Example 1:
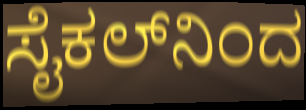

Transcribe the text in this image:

ಸೈಕಲ್‌ನಿಂದ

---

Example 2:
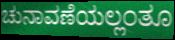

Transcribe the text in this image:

ಚುನಾವಣೆಯಲ್ಲಂತೂ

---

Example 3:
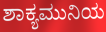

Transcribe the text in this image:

ಶಾಕ್ಯಮುನಿಯ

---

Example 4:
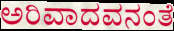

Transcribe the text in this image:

ಅರಿವಾದವನಂತೆ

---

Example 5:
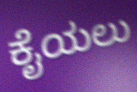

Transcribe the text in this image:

ಕೈಯಲು